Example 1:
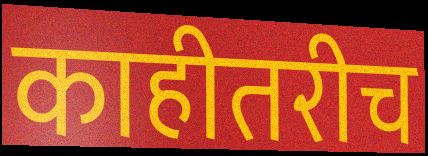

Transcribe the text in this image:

काहीतरीच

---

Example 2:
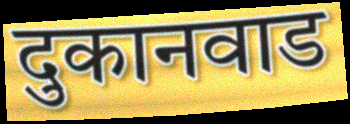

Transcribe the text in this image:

दुकानवाड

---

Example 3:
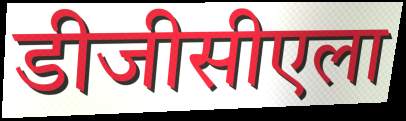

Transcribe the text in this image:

डीजीसीएला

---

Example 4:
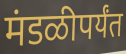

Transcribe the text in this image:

मंडळीपर्यंत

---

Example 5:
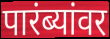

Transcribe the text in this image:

पारंब्यांवर